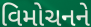
વિમોચનને